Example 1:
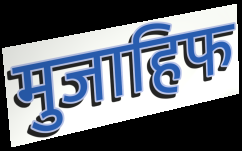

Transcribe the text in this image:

मुजाहिफ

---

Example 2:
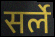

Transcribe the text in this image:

सर्ले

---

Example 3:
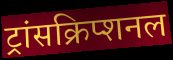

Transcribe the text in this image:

ट्रांसक्रिप्शनल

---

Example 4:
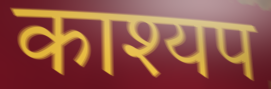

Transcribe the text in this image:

काश्यप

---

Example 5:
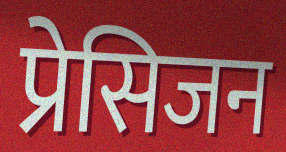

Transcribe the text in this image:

प्रेसिजन